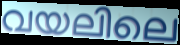
വയലിലെ